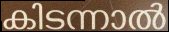
കിടന്നാൽ